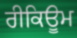
ਰੀਕਿਊਮ